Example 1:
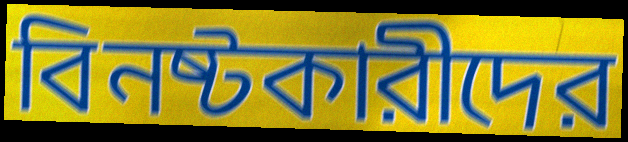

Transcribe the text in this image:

বিনষ্টকারীদের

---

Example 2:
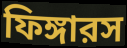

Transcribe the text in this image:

ফিঙ্গারস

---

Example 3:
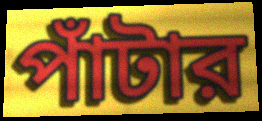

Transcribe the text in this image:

পাঁটার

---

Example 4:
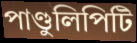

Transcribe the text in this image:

পাণ্ডুলিপিটি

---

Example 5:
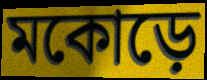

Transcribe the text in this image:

মকোড়ে